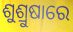
ଶୁଶ୍ରୁଷାରେ